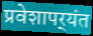
प्रवेशापर्यंत